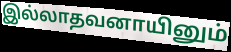
இல்லாதவனாயினும்